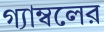
গ্যাম্বলের